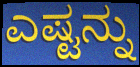
ಎಷ್ಟನ್ನು